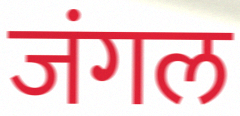
जंगल